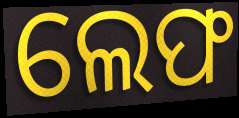
ଲେଫ